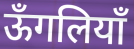
ऊँगलियाँ